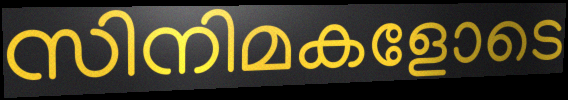
സിനിമകളോടെ